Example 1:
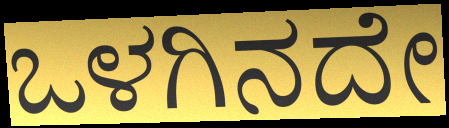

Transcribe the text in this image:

ಒಳಗಿನದೇ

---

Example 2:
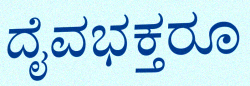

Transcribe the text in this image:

ದೈವಭಕ್ತರೂ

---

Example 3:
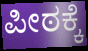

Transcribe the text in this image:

ಪೀಠಕ್ಕೆ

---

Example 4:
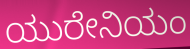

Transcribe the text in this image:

ಯುರೇನಿಯಂ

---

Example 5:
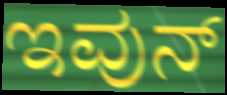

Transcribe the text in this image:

ಇವುನ್